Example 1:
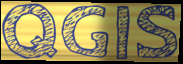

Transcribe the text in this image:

QGIS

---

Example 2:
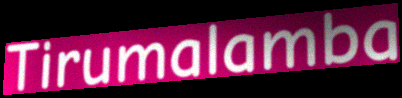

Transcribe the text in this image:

Tirumalamba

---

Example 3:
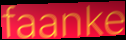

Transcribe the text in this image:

faanke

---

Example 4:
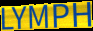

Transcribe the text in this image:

LYMPH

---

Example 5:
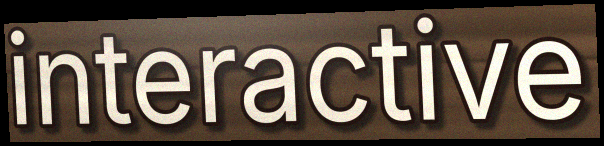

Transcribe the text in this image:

interactive